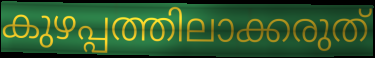
കുഴപ്പത്തിലാക്കരുത്